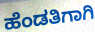
ಹೆಂಡತಿಗಾಗಿ